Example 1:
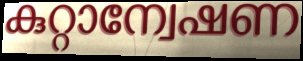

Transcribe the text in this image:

കുറ്റാന്വേഷണ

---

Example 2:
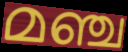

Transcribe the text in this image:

മഞ്ച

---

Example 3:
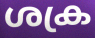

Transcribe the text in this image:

ശക്ര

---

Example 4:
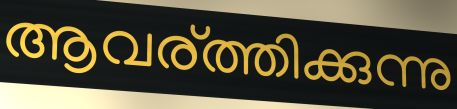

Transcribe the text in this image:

ആവര്ത്തിക്കുന്നു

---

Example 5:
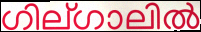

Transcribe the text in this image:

ഗില്ഗാലിൽ